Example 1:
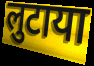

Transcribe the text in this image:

लुटाया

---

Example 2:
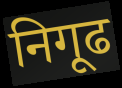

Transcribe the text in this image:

निगूढ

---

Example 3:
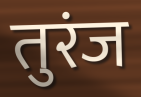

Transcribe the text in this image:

तुरंज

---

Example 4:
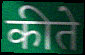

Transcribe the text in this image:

कीते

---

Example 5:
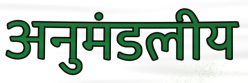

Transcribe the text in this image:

अनुमंडलीय